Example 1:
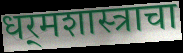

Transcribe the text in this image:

धर्मशास्त्राचा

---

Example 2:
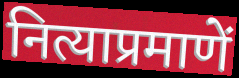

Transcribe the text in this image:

नित्याप्रमाणें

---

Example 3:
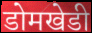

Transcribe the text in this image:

डोमखेडी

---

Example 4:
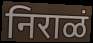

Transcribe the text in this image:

निराळं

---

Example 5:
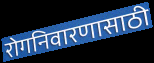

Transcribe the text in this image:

रोगनिवारणासाठी